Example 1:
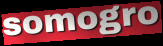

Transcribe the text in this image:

somogro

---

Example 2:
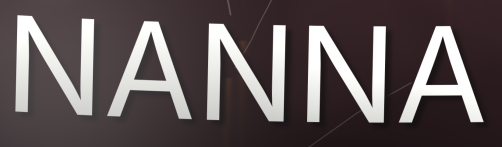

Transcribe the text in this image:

NANNA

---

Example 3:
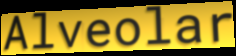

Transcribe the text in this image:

Alveolar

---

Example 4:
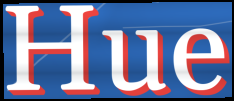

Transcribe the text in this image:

Hue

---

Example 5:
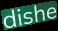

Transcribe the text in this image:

dishe